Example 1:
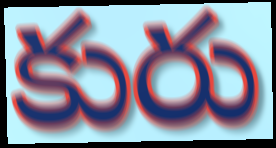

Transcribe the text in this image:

కురు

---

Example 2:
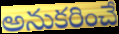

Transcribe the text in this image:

అనుకరించే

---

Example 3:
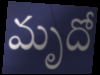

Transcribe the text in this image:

మృదో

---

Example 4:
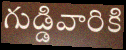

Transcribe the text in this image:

గుడ్డివారికి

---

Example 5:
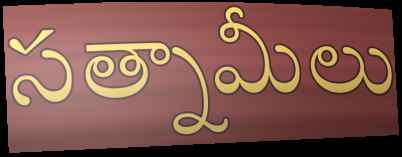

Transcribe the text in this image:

సత్నామీలు